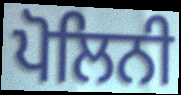
ਪੋਲਿਨੀ